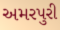
અમરપુરી